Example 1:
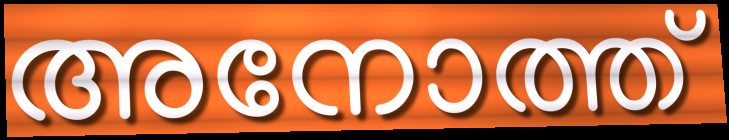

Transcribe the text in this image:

അനോത്ത്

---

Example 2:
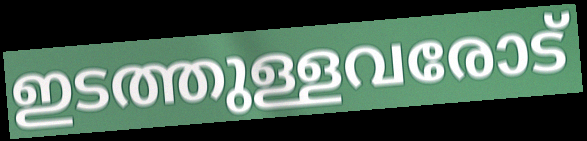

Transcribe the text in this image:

ഇടത്തുള്ളവരോട്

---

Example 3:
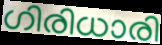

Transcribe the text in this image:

ഗിരിധാരി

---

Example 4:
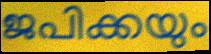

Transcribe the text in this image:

ജപിക്കയും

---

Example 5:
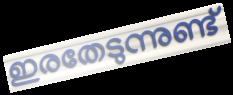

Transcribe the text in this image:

ഇരതേടുന്നുണ്ട്